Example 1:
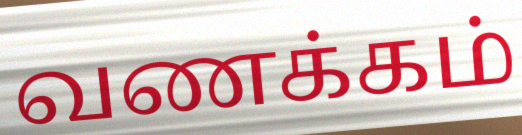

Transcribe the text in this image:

வணக்கம்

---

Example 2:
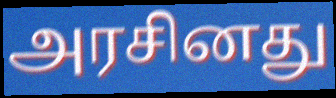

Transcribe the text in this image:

அரசினது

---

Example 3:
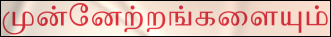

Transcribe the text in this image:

முன்னேற்றங்களையும்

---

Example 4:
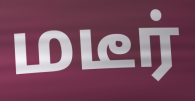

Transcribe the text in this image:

மடீர்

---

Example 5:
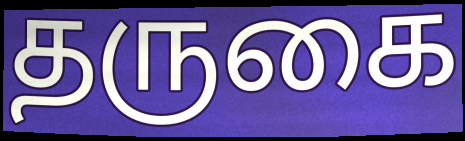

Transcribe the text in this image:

தருகை